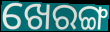
ଖେରଙ୍ଗ